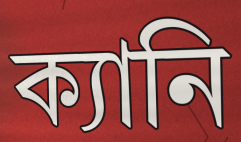
ক্যানি